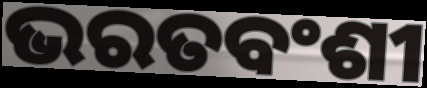
ଭରତବଂଶୀ